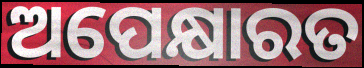
ଅପେକ୍ଷାରତ